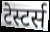
टेस्टर्स